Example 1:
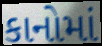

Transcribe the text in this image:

કાનોમાં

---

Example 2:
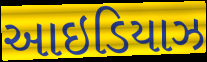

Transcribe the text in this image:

આઇડિયાઝ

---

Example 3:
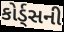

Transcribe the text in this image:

કોર્ડ્સની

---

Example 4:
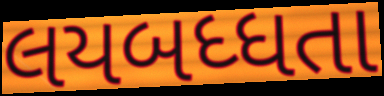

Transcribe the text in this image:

લયબધ્ધતા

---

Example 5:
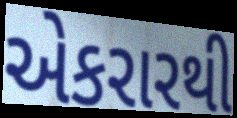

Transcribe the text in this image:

એકરારથી